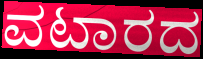
ವಟಾರದ